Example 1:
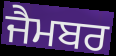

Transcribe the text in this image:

ਜੈਮਬਰ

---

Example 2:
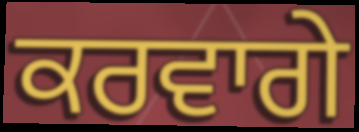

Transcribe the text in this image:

ਕਰਵਾਗੇ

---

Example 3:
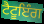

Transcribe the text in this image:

ਟੈਟੂਇੰਗ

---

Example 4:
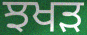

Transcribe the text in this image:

ਝਖੜ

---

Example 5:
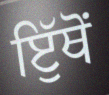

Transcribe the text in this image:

ਇੁੱਥੋਂ